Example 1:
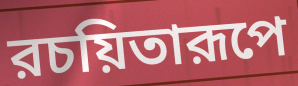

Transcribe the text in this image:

রচয়িতারূপে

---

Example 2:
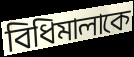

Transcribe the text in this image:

বিধিমালাকে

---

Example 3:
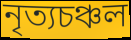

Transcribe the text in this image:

নৃত্যচঞ্চল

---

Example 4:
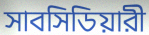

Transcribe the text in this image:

সাবসিডিয়ারী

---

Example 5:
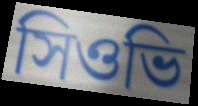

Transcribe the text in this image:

সিওভি